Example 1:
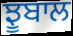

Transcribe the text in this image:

ਝੂਬਾਲ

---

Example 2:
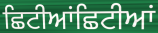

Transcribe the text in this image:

ਛਿਟੀਆਂਛਿਟੀਆਂ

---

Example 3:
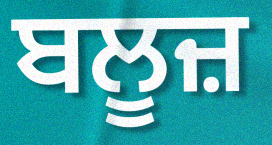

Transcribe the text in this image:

ਬਲੂਜ਼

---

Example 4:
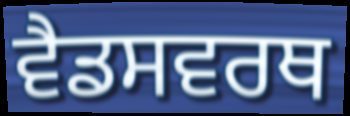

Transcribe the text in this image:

ਵੈਡਸਵਰਥ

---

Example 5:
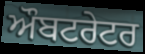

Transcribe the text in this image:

ਔਬਟਰੇਟਰ